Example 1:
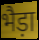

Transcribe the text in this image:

भैड़ा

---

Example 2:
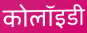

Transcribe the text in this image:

कोलॉइडी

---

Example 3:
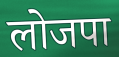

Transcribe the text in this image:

लोजपा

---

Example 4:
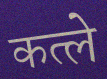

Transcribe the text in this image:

कत्ले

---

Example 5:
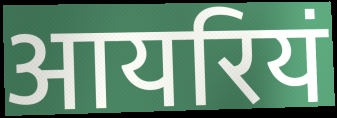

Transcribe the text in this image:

आयरियं